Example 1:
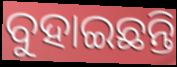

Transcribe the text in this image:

ବୁହାଇଛନ୍ତି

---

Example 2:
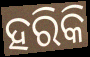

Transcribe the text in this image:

ହରିକି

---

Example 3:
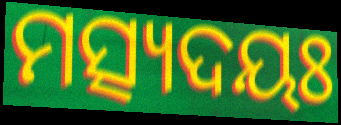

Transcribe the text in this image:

ମତ୍ସ୍ୟଦୟଃ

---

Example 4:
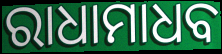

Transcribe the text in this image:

ରାଧାମାଧବ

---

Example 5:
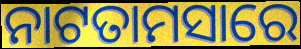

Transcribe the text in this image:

ନାଟତାମସାରେ